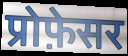
प्रोफ़ेसर